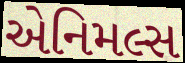
એનિમલ્સ